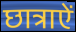
छात्राऐं